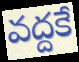
వద్దకే